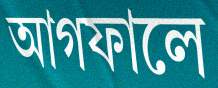
আগফালে